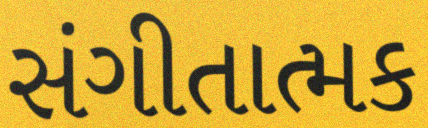
સંગીતાત્મક